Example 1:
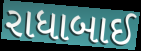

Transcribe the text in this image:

રાધાબાઈ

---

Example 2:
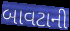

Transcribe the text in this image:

બાવટાની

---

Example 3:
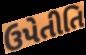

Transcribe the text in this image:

ઉપેતીતિ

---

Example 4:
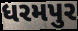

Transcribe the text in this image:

ધરમપુર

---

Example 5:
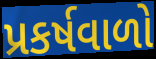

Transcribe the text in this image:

પ્રકર્ષવાળો